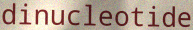
dinucleotide